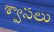
శ్వాసలు